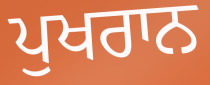
ਪੁਖਰਾਨ